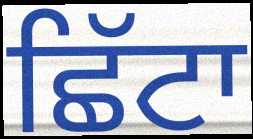
ਛਿੱਟਾ